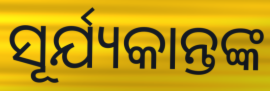
ସୂର୍ଯ୍ୟକାନ୍ତଙ୍କ